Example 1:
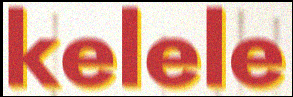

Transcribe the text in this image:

kelele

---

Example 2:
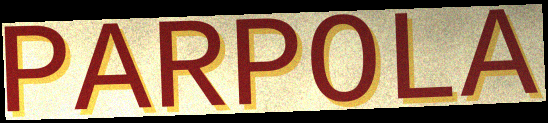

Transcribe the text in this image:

PARPOLA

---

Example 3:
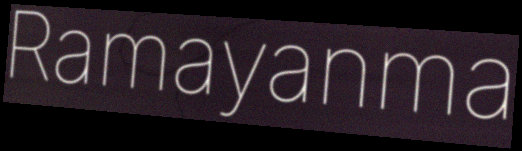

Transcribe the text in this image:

Ramayanma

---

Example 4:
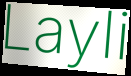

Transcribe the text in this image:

Layli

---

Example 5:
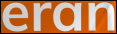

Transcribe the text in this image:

eran